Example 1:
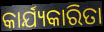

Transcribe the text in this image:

କାର୍ଯ୍ୟକାରିତା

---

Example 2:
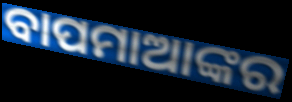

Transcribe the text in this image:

ବାପମାଆଙ୍କର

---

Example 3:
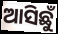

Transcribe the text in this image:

ଆସିଛୁଁ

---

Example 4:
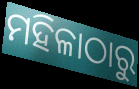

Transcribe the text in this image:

ମହିଳାଠାରୁ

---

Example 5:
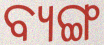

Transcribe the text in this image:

ବ୍ୟଙ୍ଗ